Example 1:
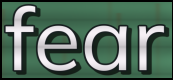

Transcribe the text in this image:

fear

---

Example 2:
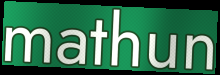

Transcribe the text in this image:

mathun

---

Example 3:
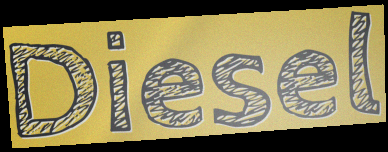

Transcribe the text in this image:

Diesel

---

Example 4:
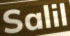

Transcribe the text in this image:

Salil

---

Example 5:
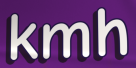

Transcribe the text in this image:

kmh